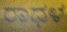
ರಾಧಳ